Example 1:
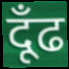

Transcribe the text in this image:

दूँढ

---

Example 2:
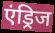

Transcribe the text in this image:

एंड्रिज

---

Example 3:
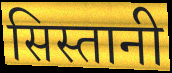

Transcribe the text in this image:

सिस्तानी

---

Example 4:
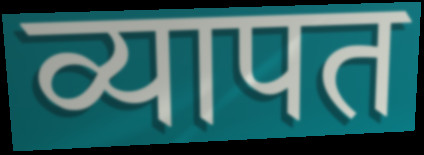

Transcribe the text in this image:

व्यापत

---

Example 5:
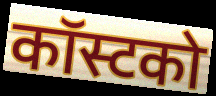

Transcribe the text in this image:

कॉस्टको